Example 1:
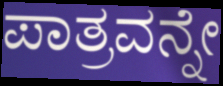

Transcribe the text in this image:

ಪಾತ್ರವನ್ನೇ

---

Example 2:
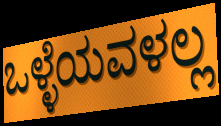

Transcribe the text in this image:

ಒಳ್ಳೆಯವಳಲ್ಲ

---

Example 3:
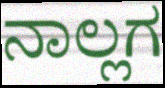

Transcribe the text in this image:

ನಾಲ್ಲಗ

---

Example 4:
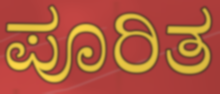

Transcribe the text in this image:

ಪೂರಿತ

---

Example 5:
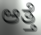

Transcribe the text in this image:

ಆತ್ತೆ